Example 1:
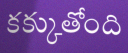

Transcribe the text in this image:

కక్కుతోంది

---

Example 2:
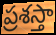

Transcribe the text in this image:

ప్రశస్తా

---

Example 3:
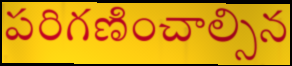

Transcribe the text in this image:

పరిగణించాల్సిన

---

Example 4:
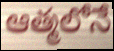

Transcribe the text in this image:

ఆత్మలోనే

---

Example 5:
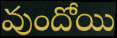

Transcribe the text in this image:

వుందోయి